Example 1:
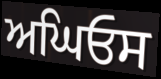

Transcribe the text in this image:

ਅਘਿਓਸ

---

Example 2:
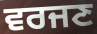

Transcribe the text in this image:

ਵਰਜਣ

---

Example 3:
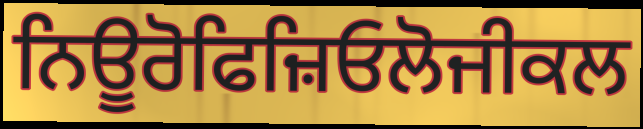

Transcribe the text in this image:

ਨਿਊਰੋਫਿਜ਼ਿਓਲੋਜੀਕਲ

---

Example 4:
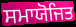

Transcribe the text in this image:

ਸਮਾਯੋਜਿਤ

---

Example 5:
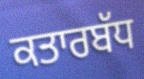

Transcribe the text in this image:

ਕਤਾਰਬੱਧ